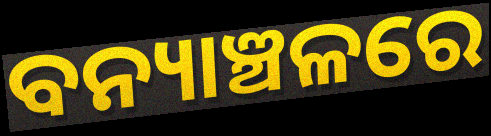
ବନ୍ୟାଞ୍ଚଳରେ